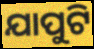
ଯାପୁଟି